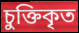
চুক্তিকৃত